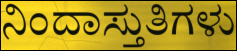
ನಿಂದಾಸ್ತುತಿಗಳು